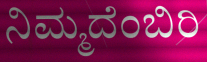
ನಿಮ್ಮದೆಂಬಿರಿ